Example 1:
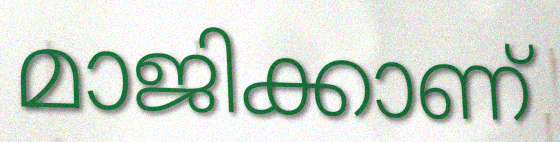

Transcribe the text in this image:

മാജിക്കാണ്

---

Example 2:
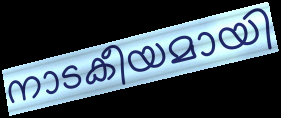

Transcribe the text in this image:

നാടകീയമായി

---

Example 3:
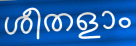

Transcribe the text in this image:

ശീതളാം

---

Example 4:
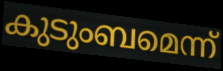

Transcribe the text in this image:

കുടുംബമെന്ന്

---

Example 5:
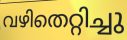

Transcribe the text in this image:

വഴിതെറ്റിച്ചു